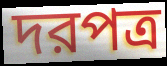
দরপত্র